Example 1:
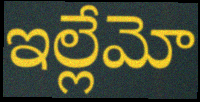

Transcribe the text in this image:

ఇల్లేమో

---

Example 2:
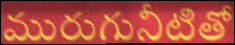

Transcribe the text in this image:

మురుగునీటితో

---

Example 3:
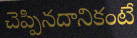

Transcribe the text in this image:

చెప్పినదానికంటే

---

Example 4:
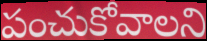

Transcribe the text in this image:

పంచుకోవాలని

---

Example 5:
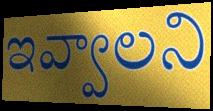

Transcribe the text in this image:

ఇవ్వాలని